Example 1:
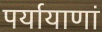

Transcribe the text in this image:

पर्यायाणां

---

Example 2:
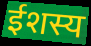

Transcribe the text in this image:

ईशस्य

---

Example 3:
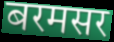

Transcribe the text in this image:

बरमसर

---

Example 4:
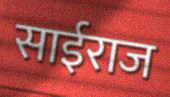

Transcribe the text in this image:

साईराज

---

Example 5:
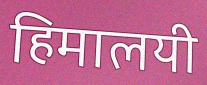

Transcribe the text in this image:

हिमालयी